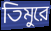
তিমুরে